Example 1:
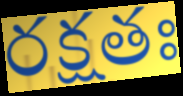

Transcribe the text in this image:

రక్షతః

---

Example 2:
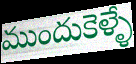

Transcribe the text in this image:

ముందుకెళ్ళే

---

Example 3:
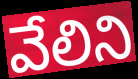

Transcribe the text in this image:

వేలిని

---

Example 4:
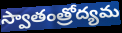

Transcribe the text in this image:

స్వాతంత్రోద్యమ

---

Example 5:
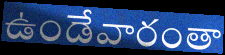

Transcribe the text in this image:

ఉండేవారంతా